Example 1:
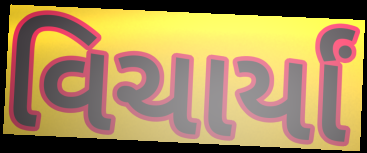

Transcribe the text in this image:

વિચાર્યાં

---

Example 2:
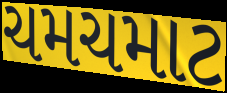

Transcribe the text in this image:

ચમચમાટ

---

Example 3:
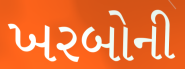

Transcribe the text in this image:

ખરબોની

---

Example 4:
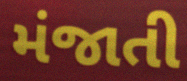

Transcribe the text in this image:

મંજાતી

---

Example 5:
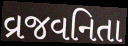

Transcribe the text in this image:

વ્રજવનિતા